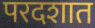
परदशात